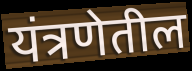
यंत्रणेतील